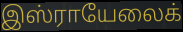
இஸ்ராயேலைக்